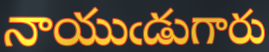
నాయుఁడుగారు